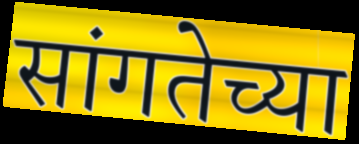
सांगतेच्या